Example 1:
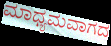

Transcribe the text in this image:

ಮಾಧ್ಯಮವಾಗದ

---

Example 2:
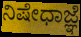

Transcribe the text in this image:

ನಿಷೇಧಾಜ್ಞೆ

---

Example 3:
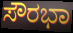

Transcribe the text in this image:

ಸೌರಭಾ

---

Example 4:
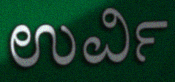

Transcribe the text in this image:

ಉರ್ವಿ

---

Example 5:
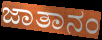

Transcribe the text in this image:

ಜಾತಾನಂ